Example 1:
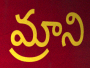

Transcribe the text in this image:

మ్రాని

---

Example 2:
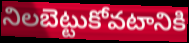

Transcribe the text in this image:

నిలబెట్టుకోవటానికి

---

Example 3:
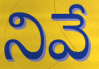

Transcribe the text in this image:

నివే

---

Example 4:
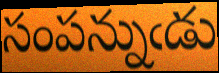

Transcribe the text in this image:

సంపన్నుఁడు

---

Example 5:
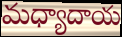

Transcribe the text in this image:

మధ్యాదాయ